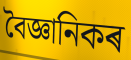
বৈজ্ঞানিকৰ